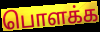
பொளக்க